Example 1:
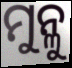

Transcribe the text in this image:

ମୁନ୍ଳୁ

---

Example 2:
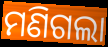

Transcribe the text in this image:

ମଣିଗଲା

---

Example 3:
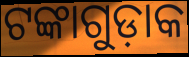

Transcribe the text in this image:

ଟଙ୍କାଗୁଡ଼ାକ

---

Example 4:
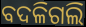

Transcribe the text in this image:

ବଦଳିଗଲି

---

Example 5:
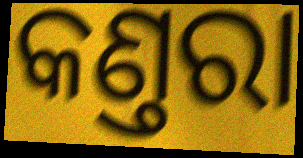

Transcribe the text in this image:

କଣ୍ତରା